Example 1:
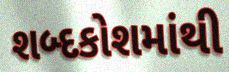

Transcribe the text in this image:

શબ્દકોશમાંથી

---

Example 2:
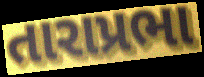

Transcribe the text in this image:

તારાપ્રભા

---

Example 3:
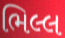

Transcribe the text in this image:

ભિલ્લ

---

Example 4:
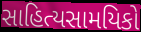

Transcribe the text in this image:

સાહિત્યસામયિકો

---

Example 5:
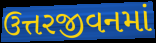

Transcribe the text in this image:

ઉત્તરજીવનમાં